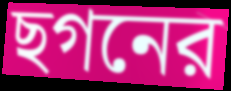
ছগনের